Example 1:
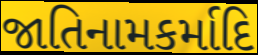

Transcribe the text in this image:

જાતિનામકર્માદિ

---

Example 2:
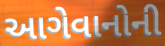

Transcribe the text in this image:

આગેવાનોની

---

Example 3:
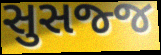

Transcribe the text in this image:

સુસજ્જ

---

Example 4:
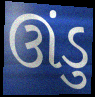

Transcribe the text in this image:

ઊંડુ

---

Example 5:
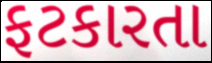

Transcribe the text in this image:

ફટકારતા